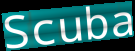
Scuba